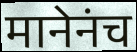
मानेनंच